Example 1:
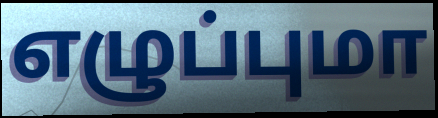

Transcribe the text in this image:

எழுப்புமா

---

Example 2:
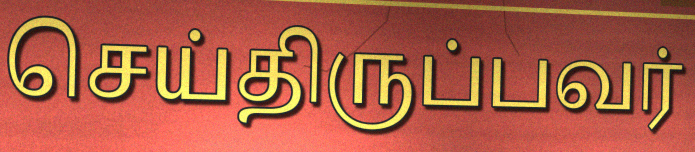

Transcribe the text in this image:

செய்திருப்பவர்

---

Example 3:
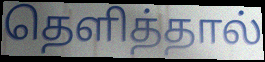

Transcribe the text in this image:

தெளித்தால்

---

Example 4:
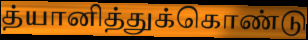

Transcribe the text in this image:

த்யானித்துக்கொண்டு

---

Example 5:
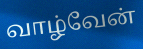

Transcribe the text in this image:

வாழ்வேன்